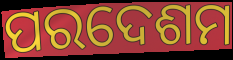
ପରଦେଶମ